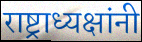
राष्ट्राध्यक्षांनी